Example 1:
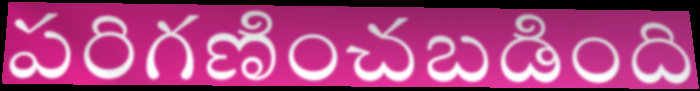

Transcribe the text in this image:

పరిగణించబడింది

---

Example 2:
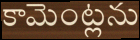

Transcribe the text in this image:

కామెంట్లను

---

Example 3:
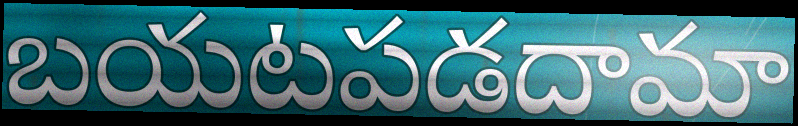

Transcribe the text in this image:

బయటపడదామా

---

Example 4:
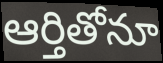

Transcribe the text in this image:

ఆర్తితోనూ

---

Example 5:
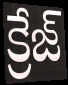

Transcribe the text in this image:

క్రేజ్